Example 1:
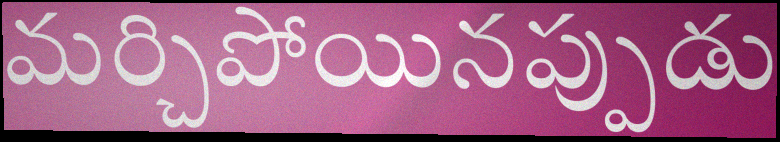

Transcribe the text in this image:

మర్చిపోయినప్పుడు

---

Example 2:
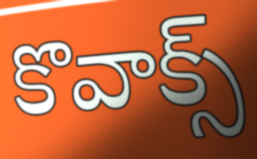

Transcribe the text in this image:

కొవాక్స్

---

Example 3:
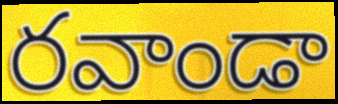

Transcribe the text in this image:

రవాండా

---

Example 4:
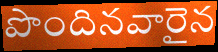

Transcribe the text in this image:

పొందినవారైన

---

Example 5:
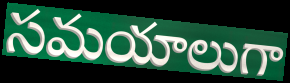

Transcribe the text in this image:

సమయాలుగా